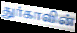
துர்காவின்